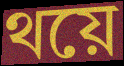
থয়ে